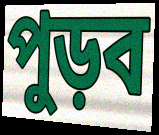
পুড়ব